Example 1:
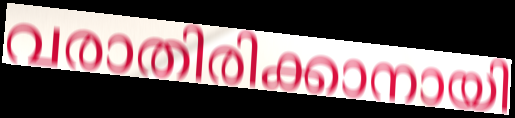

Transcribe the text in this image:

വരാതിരിക്കാനായി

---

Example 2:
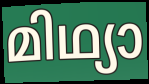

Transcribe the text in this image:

മിഥ്യാ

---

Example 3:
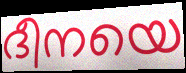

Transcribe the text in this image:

ദീനയെ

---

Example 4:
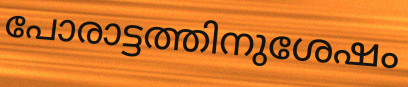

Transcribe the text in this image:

പോരാട്ടത്തിനുശേഷം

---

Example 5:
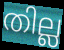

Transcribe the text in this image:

തില്ല